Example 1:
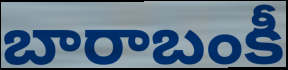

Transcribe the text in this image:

బారాబంకీ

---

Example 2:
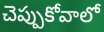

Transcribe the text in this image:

చెప్పుకోవాలో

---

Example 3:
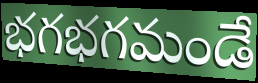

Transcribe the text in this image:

భగభగమండే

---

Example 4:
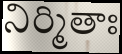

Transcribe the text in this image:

నిర్మితాః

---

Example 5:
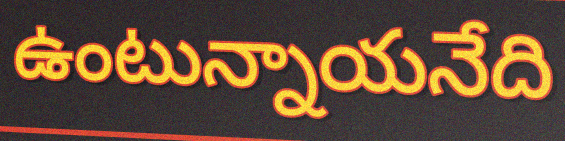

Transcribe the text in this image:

ఉంటున్నాయనేది